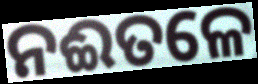
ନଈତଳେ